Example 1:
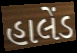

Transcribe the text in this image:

હાલેંડ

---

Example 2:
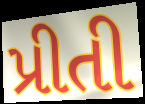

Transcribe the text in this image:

પ્રીતી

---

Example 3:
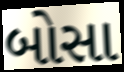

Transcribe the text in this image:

બોસા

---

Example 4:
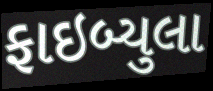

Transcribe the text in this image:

ફાઇબ્યુલા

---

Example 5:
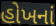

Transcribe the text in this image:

હોખનાં